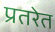
प्रतरेत